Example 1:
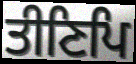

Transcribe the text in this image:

ਤੀਣਿਪਿ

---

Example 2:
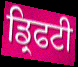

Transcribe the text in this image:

ਡ੍ਰਿਫਟੀ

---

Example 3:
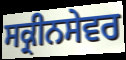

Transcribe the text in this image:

ਸਕ੍ਰੀਨਸੇਵਰ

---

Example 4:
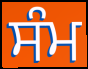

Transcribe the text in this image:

ਸੰਮ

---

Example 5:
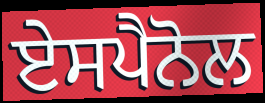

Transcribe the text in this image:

ਏਸਪੈਨੋਲ